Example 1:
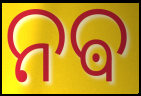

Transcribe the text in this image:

ନଵ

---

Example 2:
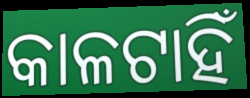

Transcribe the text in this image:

କାଳଟାହିଁ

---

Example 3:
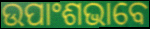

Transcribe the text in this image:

ଉପାଂଶଭାବେ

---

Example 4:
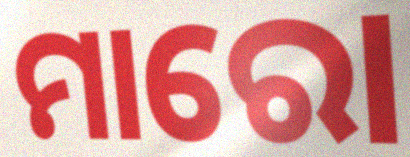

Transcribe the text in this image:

ମାରୋ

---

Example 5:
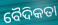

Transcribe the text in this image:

ବୈଦିକତା